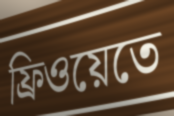
ফ্রিওয়েতে